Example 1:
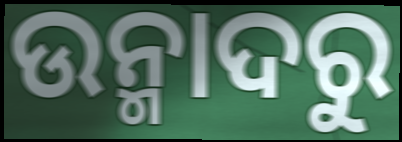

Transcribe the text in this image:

ଉନ୍ମାଦରୁ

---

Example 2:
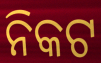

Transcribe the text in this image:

ନିକଟ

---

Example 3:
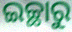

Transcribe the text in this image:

ଇଚ୍ଛାରୁ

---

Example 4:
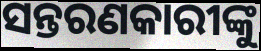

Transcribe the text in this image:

ସନ୍ତରଣକାରୀଙ୍କୁ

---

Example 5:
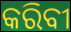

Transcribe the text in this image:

କରିବୀ